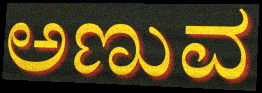
ಅಣುವ